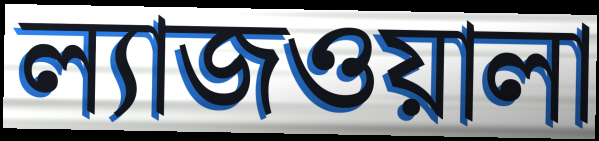
ল্যাজওয়ালা